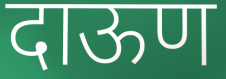
दाऊण